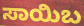
ಸಾಯಿಬ